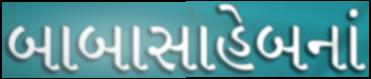
બાબાસાહેબનાં